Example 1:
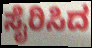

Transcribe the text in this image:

ಸೈರಿಸಿದ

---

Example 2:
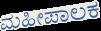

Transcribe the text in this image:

ಮಹೀಪಾಲಕ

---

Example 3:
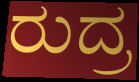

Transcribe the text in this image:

ರುದ್ರ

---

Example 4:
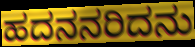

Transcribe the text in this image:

ಹದನನರಿದನು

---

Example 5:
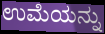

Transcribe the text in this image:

ಉಮೆಯನ್ನು